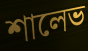
শালেভ